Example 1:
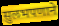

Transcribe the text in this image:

सुलभपणाने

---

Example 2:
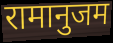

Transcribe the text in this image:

रामानुजम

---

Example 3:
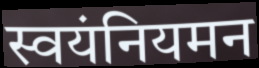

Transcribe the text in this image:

स्वयंनियमन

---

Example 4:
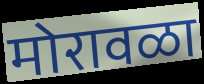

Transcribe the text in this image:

मोरावळा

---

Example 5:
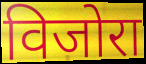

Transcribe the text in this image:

विजोरा